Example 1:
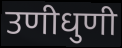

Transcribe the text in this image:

उणीधुणी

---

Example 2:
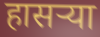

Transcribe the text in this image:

हासऱ्या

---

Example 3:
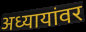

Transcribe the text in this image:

अध्यायांवर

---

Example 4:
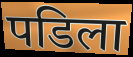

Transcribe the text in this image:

पडिला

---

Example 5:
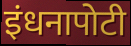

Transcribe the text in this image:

इंधनापोटी